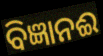
ବିଜ୍ଞାନଈ